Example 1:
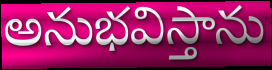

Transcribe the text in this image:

అనుభవిస్తాను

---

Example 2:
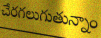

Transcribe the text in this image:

చేరగలుగుతున్నాం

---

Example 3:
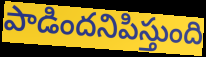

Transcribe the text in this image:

పాడిందనిపిస్తుంది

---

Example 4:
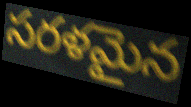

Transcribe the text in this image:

సరళమైన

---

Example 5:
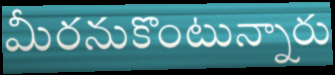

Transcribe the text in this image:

మీరనుకొంటున్నారు